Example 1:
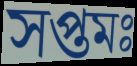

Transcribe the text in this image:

সপ্তমঃ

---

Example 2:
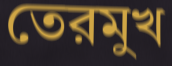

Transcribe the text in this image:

তেরমুখ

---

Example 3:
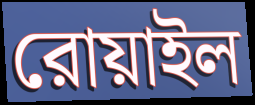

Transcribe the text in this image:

রোয়াইল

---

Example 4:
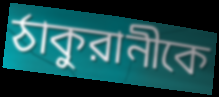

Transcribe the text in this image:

ঠাকুরানীকে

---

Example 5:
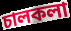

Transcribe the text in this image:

চালকলা